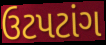
ઉટપટાંગ